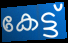
കേട്ട്